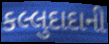
કલ્લુદાદાની